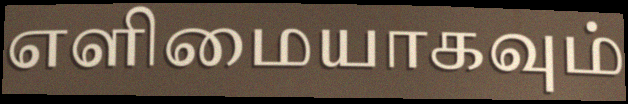
எளிமையாகவும்